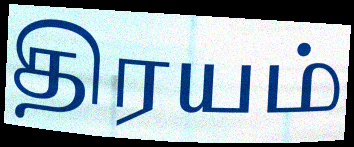
திரயம்